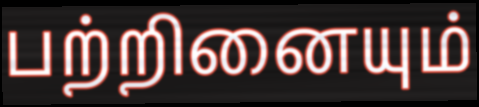
பற்றினையும்